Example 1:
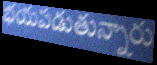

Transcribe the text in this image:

భయపడుతున్నారు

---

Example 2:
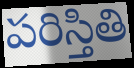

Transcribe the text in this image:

పరిస్తితి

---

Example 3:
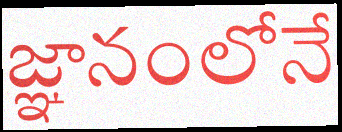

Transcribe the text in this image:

జ్ఞానంలోనే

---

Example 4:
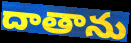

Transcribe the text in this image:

దాతాను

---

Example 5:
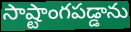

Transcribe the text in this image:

సాష్టాంగపడ్డాను